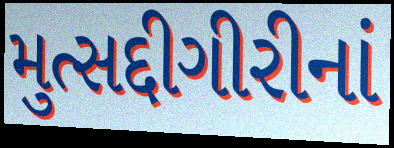
મુત્સદ્દીગીરીનાં